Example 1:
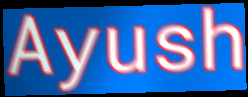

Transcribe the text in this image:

Ayush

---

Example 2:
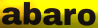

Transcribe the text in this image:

abaro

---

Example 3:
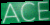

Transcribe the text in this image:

ACE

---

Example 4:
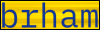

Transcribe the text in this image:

brham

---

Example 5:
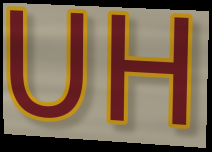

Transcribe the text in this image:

UH